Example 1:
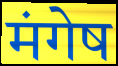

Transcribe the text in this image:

मंगेष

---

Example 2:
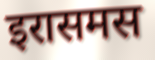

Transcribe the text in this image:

इरासमस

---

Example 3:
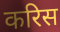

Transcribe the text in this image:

करिस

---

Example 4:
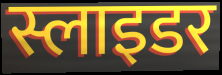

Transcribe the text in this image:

स्लाइडर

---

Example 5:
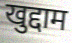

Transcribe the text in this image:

खुद्दाम